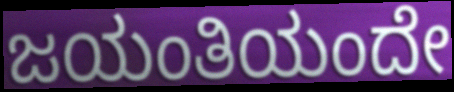
ಜಯಂತಿಯಂದೇ